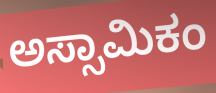
ಅಸ್ಸಾಮಿಕಂ